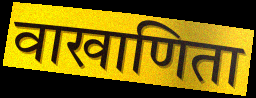
वाखाणिता